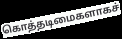
கொத்தடிமைகளாகச்